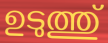
ഉടുത്തു്